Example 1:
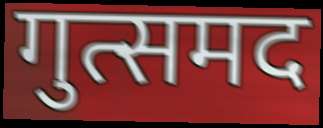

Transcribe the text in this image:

गुत्समद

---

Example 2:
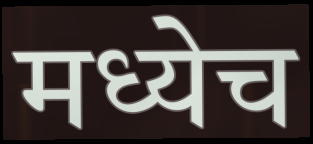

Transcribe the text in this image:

मध्‍येच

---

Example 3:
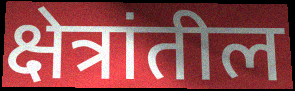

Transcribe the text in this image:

क्षेत्रांतील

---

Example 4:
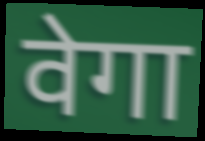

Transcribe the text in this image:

वेगा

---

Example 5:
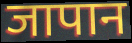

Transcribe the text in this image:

जापान